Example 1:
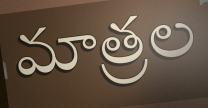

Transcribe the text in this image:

మాత్రల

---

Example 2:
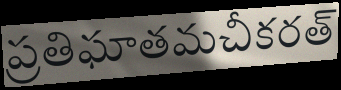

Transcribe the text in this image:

ప్రతిఘాతమచీకరత్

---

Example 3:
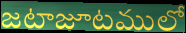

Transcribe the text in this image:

జటాజూటములో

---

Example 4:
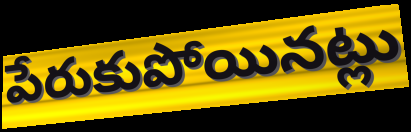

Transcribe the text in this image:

పేరుకుపోయినట్లు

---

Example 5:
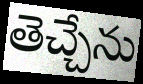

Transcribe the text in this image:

తెచ్చేను